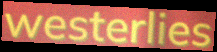
westerlies